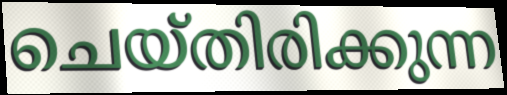
ചെയ്തിരിക്കുന്ന